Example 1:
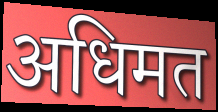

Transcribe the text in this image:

अधिमत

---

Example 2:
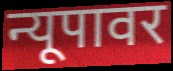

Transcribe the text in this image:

न्यूपावर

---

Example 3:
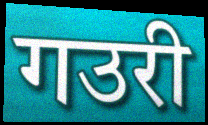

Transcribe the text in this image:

गउरी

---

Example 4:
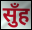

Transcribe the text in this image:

सुँह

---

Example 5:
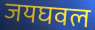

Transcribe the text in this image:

जयघवल